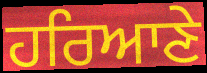
ਹਰਿਆਣੇ